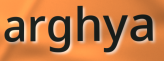
arghya